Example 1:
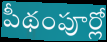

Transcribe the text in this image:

పీథంపూర్లో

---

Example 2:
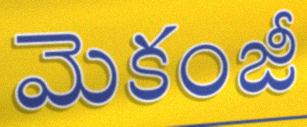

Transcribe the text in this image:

మెకంజీ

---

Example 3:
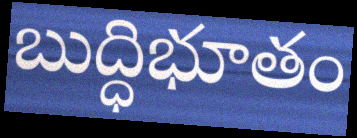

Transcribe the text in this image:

బుద్ధిభూతం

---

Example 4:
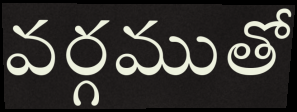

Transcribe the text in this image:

వర్గముతో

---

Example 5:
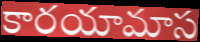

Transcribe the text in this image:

కారయామాస